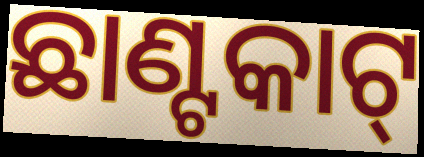
ଛାଣ୍ଟକାଟ୍